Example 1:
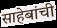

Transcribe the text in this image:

साहेबांची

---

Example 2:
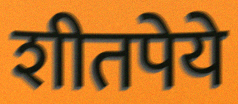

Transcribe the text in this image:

शीतपेये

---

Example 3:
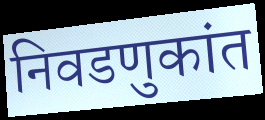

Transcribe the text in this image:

निवडणुकांत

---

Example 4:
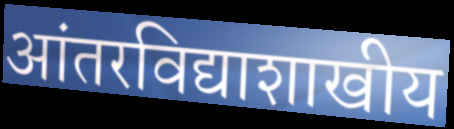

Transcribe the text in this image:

आंतरविद्याशाखीय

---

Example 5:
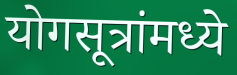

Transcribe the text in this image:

योगसूत्रांमध्ये